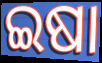
ଇଷା